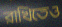
রাখিতেও